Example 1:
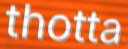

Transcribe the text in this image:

thotta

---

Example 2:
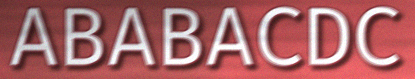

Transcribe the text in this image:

ABABACDC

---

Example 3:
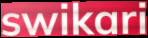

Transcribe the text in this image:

swikari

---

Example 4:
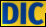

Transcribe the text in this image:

DIC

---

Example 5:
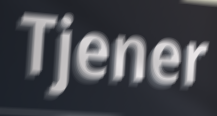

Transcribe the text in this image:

Tjener